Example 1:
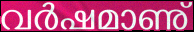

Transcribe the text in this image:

വർഷമാണു്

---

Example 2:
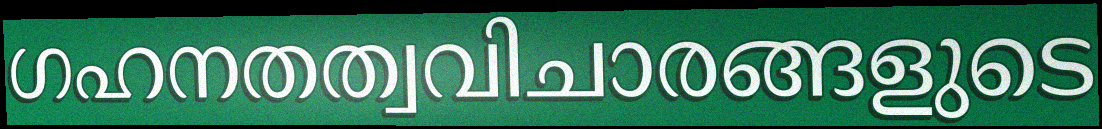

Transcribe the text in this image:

ഗഹനതത്വവിചാരങ്ങളുടെ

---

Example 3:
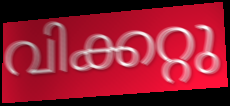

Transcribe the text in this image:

വിക്കറ്റു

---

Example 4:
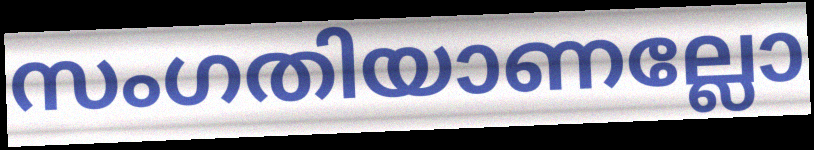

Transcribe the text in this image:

സംഗതിയാണല്ലോ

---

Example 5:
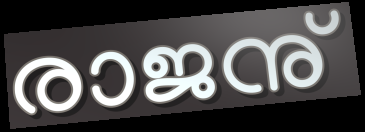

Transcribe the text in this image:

രാജനു്